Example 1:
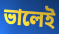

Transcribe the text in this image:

ভালেই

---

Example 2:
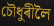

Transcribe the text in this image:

চৌধুৰীলৈ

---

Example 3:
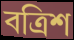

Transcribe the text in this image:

বত্ৰিশ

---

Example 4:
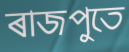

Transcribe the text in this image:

ৰাজপুতে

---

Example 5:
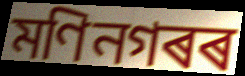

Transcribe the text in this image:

মণিনগৰৰ